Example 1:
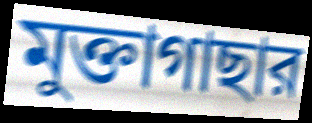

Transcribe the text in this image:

মুক্তাগাছার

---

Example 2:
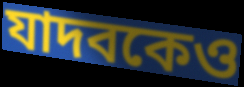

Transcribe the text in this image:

যাদবকেও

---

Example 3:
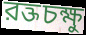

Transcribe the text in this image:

রক্তচক্ষু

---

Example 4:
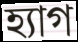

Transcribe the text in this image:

হ্যাগ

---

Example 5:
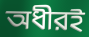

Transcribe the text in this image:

অধীরই